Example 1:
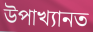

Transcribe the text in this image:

উপাখ্যানত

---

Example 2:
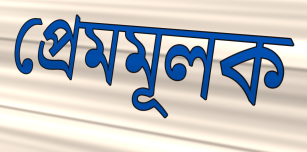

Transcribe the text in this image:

প্ৰেমমূলক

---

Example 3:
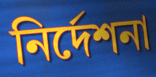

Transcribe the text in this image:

নিৰ্দেশনা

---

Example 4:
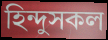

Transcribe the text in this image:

হিন্দুসকল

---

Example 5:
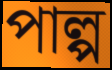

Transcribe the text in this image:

পাল্প